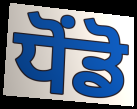
ਧੋਂਡੋ